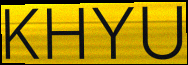
KHYU